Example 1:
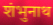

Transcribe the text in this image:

शंभुनाथ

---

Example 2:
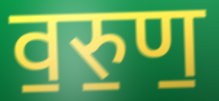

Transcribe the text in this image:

व॒रु॒ण॒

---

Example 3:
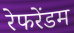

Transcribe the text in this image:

रेफरेंडम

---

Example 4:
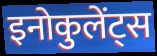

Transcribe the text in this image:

इनोकुलेंट्स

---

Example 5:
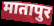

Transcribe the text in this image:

मातापुर